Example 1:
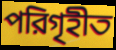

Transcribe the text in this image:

পরিগৃহীত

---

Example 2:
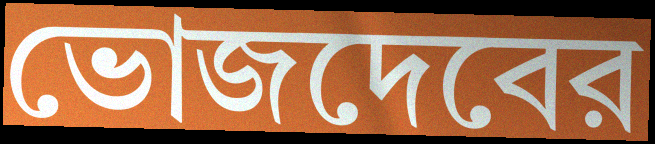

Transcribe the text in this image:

ভোজদেবের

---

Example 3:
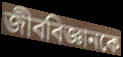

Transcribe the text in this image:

জীববিজ্ঞানকে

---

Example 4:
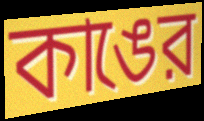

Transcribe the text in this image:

কাঙের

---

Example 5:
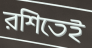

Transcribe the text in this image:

রশিতেই